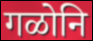
गळोनि